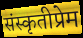
संस्कृतीप्रेम